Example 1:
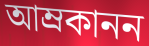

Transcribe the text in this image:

আম্রকানন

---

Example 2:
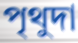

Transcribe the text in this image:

পৃথুদা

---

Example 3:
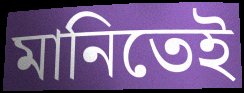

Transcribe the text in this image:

মানিতেই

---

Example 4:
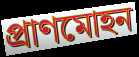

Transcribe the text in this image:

প্রাণমোহন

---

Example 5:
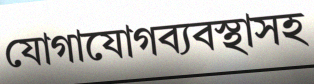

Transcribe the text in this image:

যোগাযোগব্যবস্থাসহ